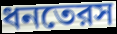
ধনতেরস